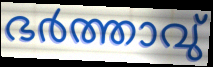
ഭർത്താവു്